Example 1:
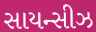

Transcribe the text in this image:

સાયન્સીઝ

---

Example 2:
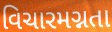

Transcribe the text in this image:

વિચારમગ્નતા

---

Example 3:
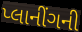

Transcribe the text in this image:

પ્લાનીંગની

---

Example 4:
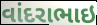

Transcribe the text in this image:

વાંદરાભાઇ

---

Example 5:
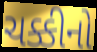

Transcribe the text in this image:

ચક્કીનો